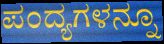
ಪಂದ್ಯಗಳನ್ನೂ